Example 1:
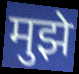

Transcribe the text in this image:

मुझे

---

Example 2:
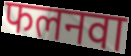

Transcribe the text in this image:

फलनवा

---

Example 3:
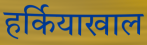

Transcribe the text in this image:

हर्कियाखाल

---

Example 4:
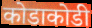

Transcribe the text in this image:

कोडाकोडी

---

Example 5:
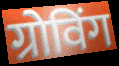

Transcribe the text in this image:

ग्रोविंग